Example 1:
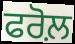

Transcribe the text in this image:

ਫਰੋਲ਼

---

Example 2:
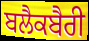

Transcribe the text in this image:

ਬਲੈਕਬੈਰੀ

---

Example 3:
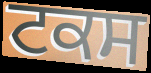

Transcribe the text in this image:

ਟਕਸ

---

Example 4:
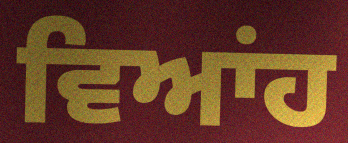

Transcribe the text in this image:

ਵਿਆਂਹ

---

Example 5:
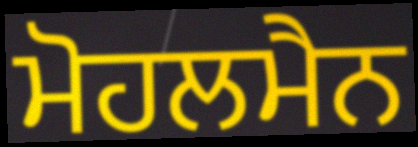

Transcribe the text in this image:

ਮੋਹਲਮੈਨ